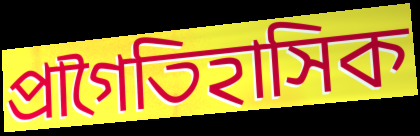
প্রাগৈতিহাসিক